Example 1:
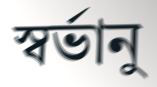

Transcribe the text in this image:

স্বর্ভানু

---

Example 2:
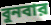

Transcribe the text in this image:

বুনবার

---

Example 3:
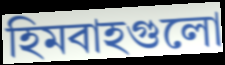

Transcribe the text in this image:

হিমবাহগুলো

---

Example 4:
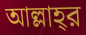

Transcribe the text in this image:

আল্লাহ্‌র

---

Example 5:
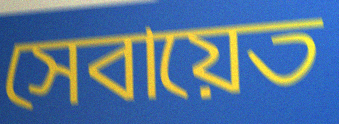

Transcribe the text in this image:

সেবায়েত